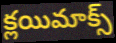
క్లయిమాక్స్